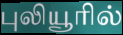
புலியூரில்